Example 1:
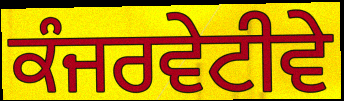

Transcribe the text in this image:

ਕੰਜਰਵੇਟੀਵੇ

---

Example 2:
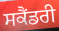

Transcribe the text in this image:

ਸਕੈਂਡਰੀ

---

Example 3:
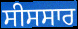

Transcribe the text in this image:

ਸੀਸਸਾਰ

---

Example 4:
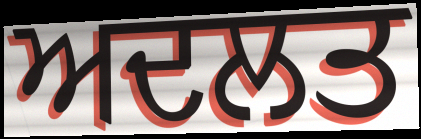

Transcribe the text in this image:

ਅਦਲਤ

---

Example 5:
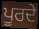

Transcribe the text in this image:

ਪੂਰਦੇ